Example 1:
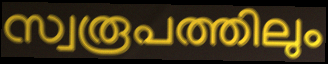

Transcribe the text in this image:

സ്വരൂപത്തിലും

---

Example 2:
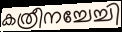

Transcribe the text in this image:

കത്രീനച്ചേച്ചി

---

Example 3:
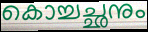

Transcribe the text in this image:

കൊച്ചച്ഛനും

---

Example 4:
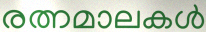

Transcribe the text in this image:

രത്നമാലകൾ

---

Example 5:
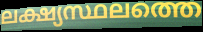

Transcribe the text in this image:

ലക്ഷ്യസ്ഥലത്തെ